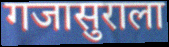
गजासुराला